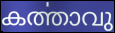
കൎത്താവു